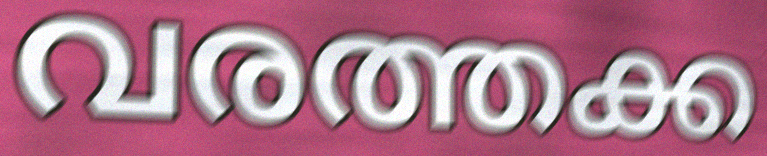
വരത്തക്ക